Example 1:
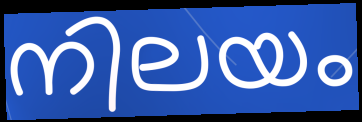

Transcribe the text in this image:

നിലയം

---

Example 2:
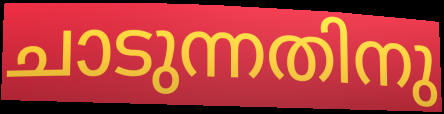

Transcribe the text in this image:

ചാടുന്നതിനു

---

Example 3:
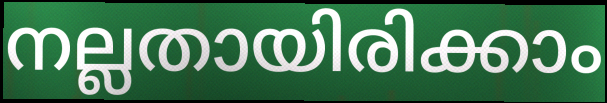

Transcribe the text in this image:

നല്ലതായിരിക്കാം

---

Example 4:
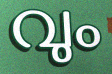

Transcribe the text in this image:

വും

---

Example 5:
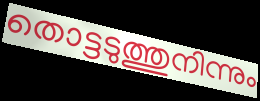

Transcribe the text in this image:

തൊട്ടടുത്തുനിന്നും